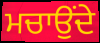
ਮਚਾਉਂਦੇ